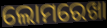
ଲୋମରେଖା